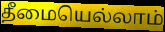
தீமையெல்லாம்